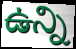
ఉన్ని